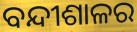
ବନ୍ଦୀଶାଳର